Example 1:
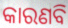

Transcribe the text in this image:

କାରଣବି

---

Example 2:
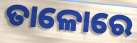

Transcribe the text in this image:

ତାଳୋରେ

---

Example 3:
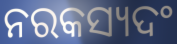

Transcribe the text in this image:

ନରକସ୍ୟଦଂ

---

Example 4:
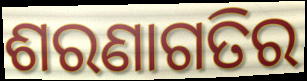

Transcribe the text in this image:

ଶରଣାଗତିର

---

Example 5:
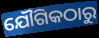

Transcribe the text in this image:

ଯୌଗିକଠାରୁ